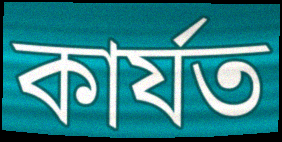
কাৰ্যত